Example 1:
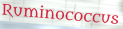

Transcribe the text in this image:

Ruminococcus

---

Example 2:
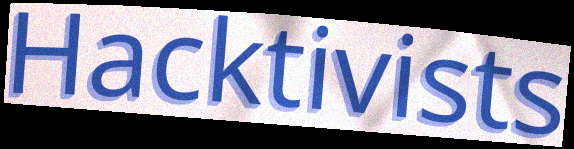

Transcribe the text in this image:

Hacktivists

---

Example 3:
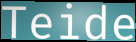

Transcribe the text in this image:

Teide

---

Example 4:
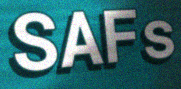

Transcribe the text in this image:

SAFs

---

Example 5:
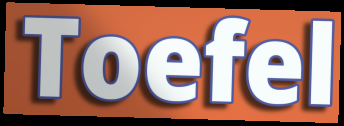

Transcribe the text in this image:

Toefel